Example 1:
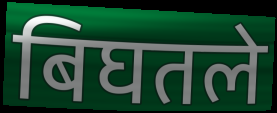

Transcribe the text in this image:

बिघतले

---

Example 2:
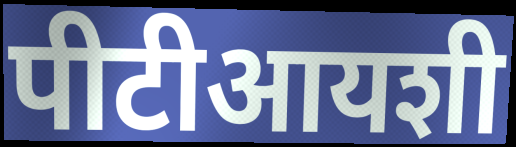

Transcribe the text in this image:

पीटीआयशी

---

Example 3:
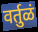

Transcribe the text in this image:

वर्तुळं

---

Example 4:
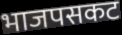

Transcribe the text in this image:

भाजपसकट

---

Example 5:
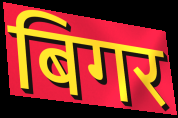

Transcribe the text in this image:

बिगर